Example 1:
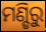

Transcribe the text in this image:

ମଣ୍ଡିରୁ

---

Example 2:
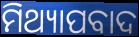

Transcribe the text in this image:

ମିଥ୍ୟାପବାଦ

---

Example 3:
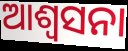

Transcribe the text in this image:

ଆଶ୍ୱସନା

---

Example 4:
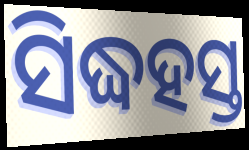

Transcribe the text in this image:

ସିଦ୍ଧହସ୍ତ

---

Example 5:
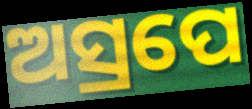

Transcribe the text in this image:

ଅସ୍ରପେ